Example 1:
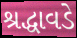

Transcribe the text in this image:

શ્રદ્ધાવડે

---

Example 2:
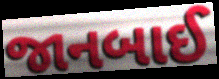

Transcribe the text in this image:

જાનબાઈ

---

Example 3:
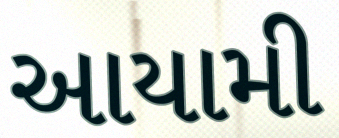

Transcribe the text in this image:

આયામી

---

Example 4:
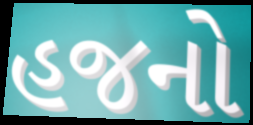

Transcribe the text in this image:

હજનો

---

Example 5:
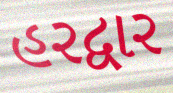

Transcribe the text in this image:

હરદ્વાર